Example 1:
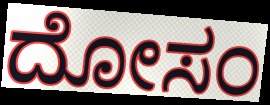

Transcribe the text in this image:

ದೋಸಂ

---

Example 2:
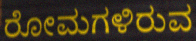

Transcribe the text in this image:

ರೋಮಗಳಿರುವ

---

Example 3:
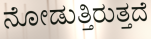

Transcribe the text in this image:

ನೋಡುತ್ತಿರುತ್ತದೆ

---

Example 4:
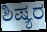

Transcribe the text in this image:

ಶಿಷ್ಯರ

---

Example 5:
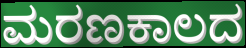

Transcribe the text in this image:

ಮರಣಕಾಲದ